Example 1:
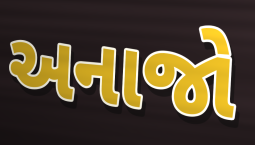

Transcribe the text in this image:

અનાજો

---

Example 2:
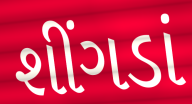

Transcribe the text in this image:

શીંગડાં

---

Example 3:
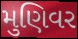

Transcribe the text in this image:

મુણિવર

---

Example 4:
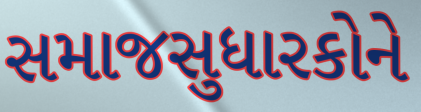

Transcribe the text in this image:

સમાજસુધારકોને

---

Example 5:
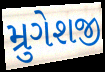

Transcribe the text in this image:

મ્રુગેશજી